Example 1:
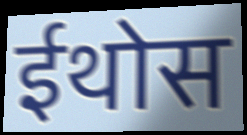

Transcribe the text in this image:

ईथोस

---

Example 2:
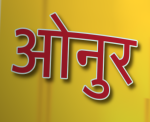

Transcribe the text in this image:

ओनुर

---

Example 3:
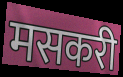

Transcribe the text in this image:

मसकरी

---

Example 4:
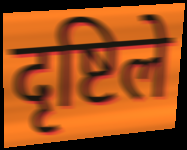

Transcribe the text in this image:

दृष्टिले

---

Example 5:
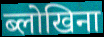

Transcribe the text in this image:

ब्लोखिना